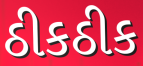
ઠીકઠીક